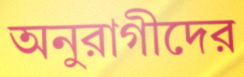
অনুরাগীদের